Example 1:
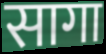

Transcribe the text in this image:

सागा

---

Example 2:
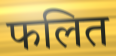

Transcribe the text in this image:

फलित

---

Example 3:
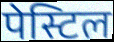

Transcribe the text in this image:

पेस्टिल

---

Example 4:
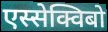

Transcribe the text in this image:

एस्सेक्विबो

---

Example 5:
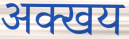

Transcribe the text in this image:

अक्खय